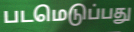
படமெடுப்பது